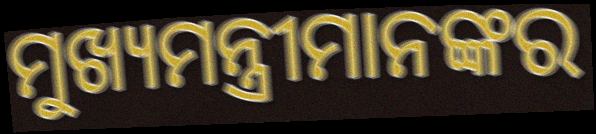
ମୁଖ୍ୟମନ୍ତ୍ରୀମାନଙ୍କର